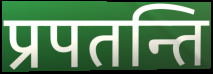
प्रपतन्ति